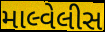
માલ્વેલીસ